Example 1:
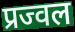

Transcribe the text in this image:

प्रज्वल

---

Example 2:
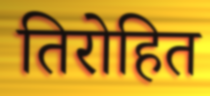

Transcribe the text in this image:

तिरोहित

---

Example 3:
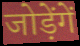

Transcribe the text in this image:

जोड़ेंगें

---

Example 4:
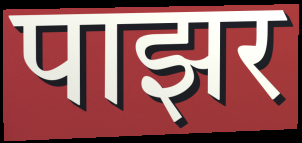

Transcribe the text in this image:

पाझर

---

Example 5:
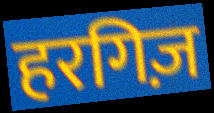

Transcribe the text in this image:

हरगिज़